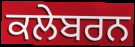
ਕਲੇਬਰਨ